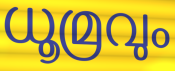
ധൂമ്രവും